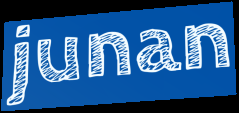
junan